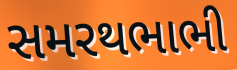
સમરથભાભી